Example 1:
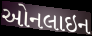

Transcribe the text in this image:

ઓનલાઇન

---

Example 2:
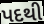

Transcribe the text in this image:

પદથી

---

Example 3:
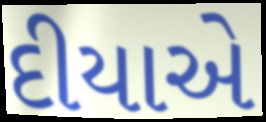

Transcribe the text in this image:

દીયાએ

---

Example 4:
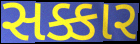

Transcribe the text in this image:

સક્કાર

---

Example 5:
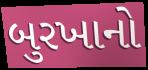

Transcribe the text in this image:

બુરખાનો